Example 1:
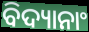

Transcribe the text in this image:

ବିଦ୍ୟାନାଂ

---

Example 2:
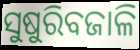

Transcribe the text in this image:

ସୁଷୁରିବଜାଳି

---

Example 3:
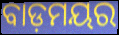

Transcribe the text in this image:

ବାଡ଼ମୟର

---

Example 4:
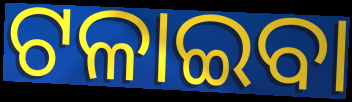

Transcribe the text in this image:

ଟଳାଇବା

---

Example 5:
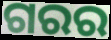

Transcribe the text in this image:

ଗରର